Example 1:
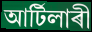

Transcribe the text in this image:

আৰ্টিলাৰী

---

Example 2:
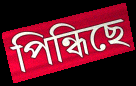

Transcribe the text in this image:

পিন্ধিছে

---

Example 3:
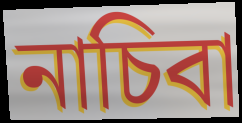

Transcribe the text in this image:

নাচিবা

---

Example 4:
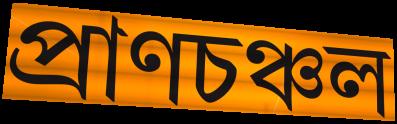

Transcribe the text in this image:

প্ৰাণচঞ্চল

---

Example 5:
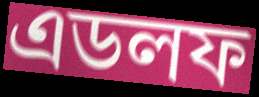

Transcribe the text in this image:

এডলফ